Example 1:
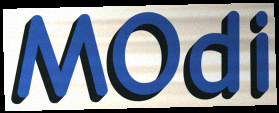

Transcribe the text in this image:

MOdi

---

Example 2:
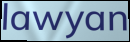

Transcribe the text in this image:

lawyan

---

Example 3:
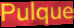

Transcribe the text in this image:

Pulque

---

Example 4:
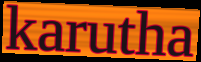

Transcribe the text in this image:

karutha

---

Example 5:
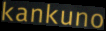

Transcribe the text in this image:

kankuno